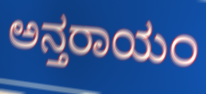
ಅನ್ತರಾಯಂ